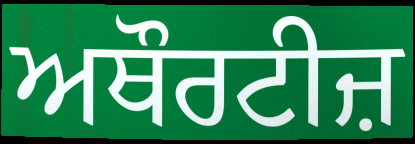
ਅਥੌਰਟੀਜ਼